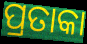
ପ୍ରତାକା